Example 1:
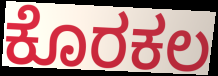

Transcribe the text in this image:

ಕೊರಕಲ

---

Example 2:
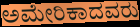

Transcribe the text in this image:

ಅಮೇರಿಕಾದವರು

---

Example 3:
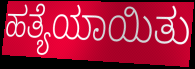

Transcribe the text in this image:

ಹತ್ಯೆಯಾಯಿತು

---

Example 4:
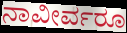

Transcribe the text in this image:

ನಾವೀರ್ವರೂ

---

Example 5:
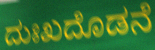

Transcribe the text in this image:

ದುಃಖದೊಡನೆ